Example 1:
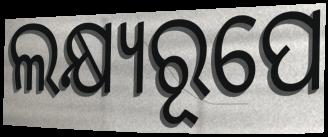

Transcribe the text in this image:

ଲକ୍ଷ୍ୟରୂପେ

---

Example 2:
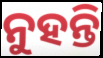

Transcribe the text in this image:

ନୁହନ୍ତି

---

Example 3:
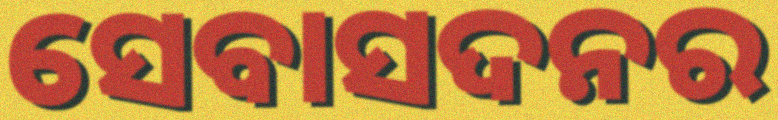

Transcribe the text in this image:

ସେବାସଦନର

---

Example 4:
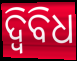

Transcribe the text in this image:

ଦ୍ଵିବିଧ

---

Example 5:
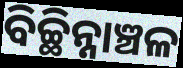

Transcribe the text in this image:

ବିଚ୍ଛିନ୍ନାଞ୍ଚଳ